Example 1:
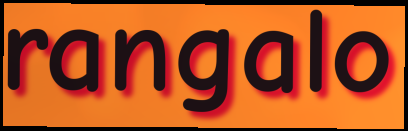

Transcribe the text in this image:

rangalo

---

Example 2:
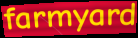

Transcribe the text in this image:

farmyard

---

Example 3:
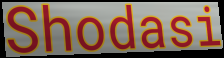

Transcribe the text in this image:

Shodasi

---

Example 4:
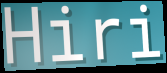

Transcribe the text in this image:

Hiri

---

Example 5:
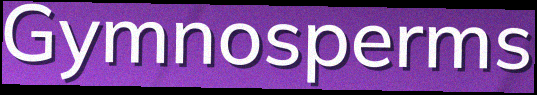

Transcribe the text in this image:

Gymnosperms